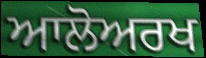
ਆਲੋਅਰਖ